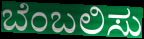
ಬೆಂಬಲಿಸು